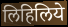
लिहिलिये